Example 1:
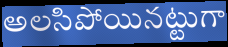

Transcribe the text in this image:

అలసిపోయినట్టుగా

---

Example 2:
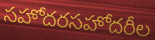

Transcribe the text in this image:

సహోదరసహోదరీల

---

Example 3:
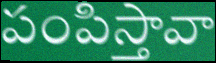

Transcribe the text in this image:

పంపిస్తావా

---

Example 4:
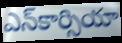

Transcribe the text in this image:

ఎన్‌కార్సియా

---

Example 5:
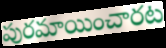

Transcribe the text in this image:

పురమాయించారట